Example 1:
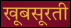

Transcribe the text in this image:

खूबसूरती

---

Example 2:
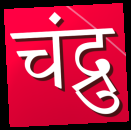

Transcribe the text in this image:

चंद्रु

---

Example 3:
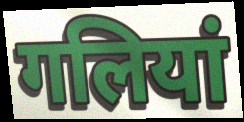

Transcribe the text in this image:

गलियां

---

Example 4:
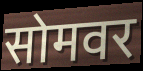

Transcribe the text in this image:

सोमवर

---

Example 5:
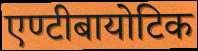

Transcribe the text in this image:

एण्टीबायोटिक